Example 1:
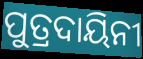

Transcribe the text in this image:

ପୁତ୍ରଦାୟିନୀ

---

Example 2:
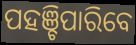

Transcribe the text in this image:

ପହଞ୍ଚିପାରିବେ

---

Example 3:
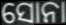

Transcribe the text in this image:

ସୋନା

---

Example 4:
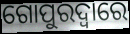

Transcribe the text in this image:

ଗୋପୁରଦ୍ଵାରେ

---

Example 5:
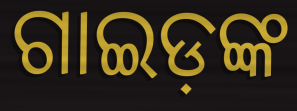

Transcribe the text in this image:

ଗାଇଡ଼ଙ୍କ